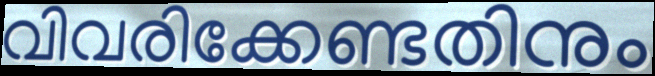
വിവരിക്കേണ്ടതിനും